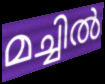
മച്ചിൽ